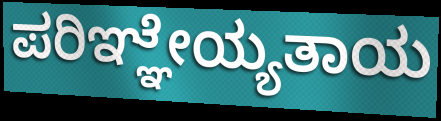
ಪರಿಞ್ಞೇಯ್ಯತಾಯ